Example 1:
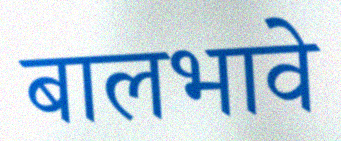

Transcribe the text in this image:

बालभावे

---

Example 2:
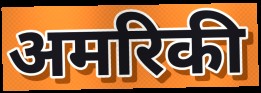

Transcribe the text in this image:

अमरिकी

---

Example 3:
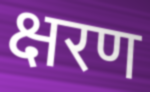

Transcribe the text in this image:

क्षरण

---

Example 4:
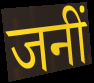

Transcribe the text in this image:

जनीं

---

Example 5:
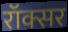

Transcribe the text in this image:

रॉक्सर